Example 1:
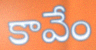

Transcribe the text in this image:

కావేం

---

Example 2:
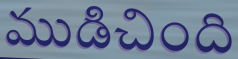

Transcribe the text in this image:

ముడిచింది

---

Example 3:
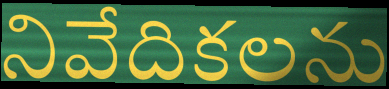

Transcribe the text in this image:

నివేదికలను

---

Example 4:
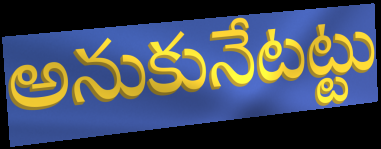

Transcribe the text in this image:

అనుకునేటట్టు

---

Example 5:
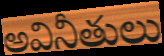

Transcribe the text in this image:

అవినీతులు